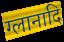
ग्लानादि